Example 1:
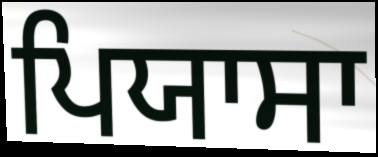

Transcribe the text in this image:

ਪਿਯਾਸਾ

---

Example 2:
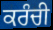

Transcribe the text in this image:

ਕਰੰਚੀ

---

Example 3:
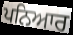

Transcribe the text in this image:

ਪਨਿਆਰ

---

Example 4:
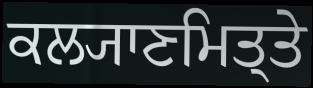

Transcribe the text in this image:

ਕਲ੍ਯਾਣਮਿਤ੍ਤੇ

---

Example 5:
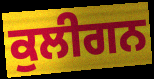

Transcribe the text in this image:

ਕੁਲੀਗਨ